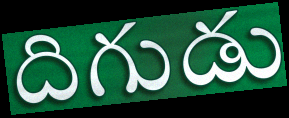
దిగుడు